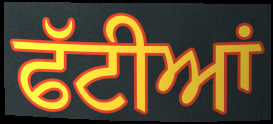
ਫੱਟੀਆਂ